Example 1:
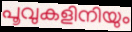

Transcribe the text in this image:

പൂവുകളിനിയും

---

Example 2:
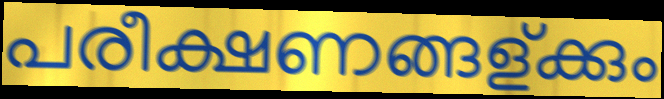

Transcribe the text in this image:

പരീക്ഷണങ്ങള്ക്കും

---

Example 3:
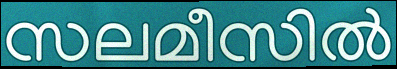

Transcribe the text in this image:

സലമീസിൽ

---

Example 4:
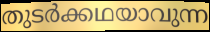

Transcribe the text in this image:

തുടർക്കഥയാവുന്ന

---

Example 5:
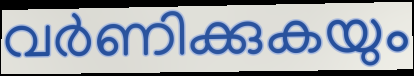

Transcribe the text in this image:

വർണിക്കുകയും